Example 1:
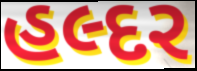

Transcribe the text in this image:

હલ્દર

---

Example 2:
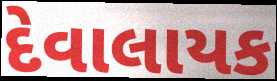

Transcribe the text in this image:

દેવાલાયક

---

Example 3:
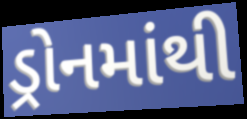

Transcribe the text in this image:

ડ્રોનમાંથી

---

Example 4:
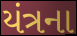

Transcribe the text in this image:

યંત્રના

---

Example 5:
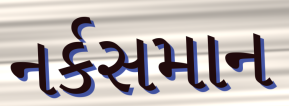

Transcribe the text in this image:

નર્કસમાન